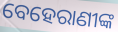
ବେହେରାଣୀଙ୍କ